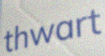
thwart